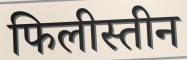
फिलीस्तीन